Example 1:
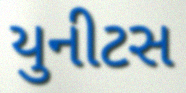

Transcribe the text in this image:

યુનીટસ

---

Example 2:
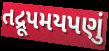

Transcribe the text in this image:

તદ્રૂપમયપણું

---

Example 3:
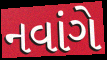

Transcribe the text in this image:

નવાંગે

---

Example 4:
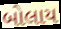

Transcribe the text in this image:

બોલાય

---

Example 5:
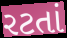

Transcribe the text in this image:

રટતાં